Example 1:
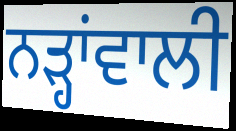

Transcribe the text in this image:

ਨੜ੍ਹਾਂਵਾਲੀ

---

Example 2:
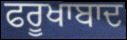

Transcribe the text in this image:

ਫਰੂਖਾਬਾਦ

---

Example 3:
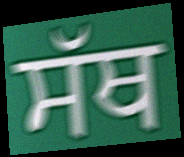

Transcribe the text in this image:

ਸੱਥ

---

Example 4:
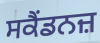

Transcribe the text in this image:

ਸਕੈਂਡਨਜ਼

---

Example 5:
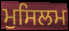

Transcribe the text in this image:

ਮੁਸਿਲਮ